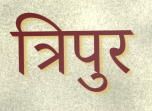
त्रिपुर